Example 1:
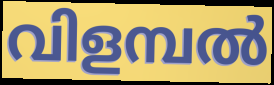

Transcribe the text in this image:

വിളമ്പൽ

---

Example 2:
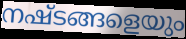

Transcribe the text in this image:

നഷ്ടങ്ങളെയും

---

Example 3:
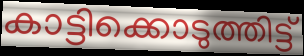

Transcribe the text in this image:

കാട്ടിക്കൊടുത്തിട്ട്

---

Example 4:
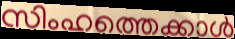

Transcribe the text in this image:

സിംഹത്തെക്കാൾ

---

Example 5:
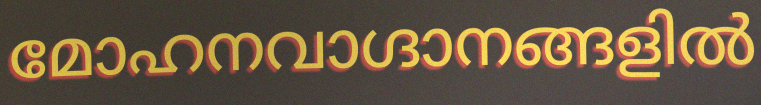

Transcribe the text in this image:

മോഹനവാഗ്ദാനങ്ങളിൽ